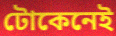
টোকেনেই